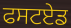
ਫਸਟਏਡ